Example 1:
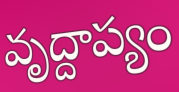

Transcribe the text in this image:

వృద్దాప్యం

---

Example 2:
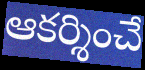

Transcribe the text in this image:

ఆకర్శించే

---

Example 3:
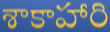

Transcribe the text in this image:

శాకాహారి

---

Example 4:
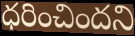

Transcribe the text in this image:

ధరించిందని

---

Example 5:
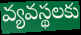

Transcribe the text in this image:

వ్యవస్థలకు